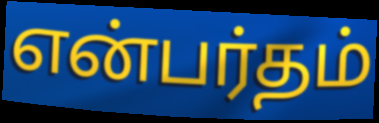
என்பர்தம்